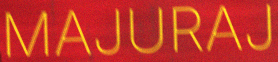
MAJURAJ